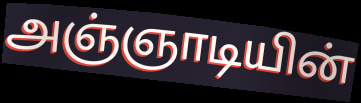
அஞ்ஞாடியின்